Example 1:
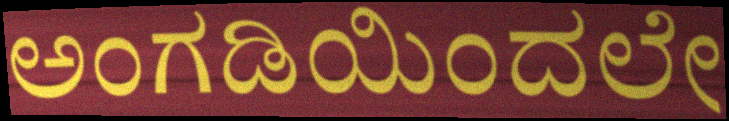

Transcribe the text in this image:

ಅಂಗಡಿಯಿಂದಲೇ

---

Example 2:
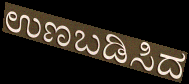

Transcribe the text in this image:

ಉಣಬಡಿಸಿದ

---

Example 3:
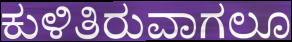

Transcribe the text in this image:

ಕುಳಿತಿರುವಾಗಲೂ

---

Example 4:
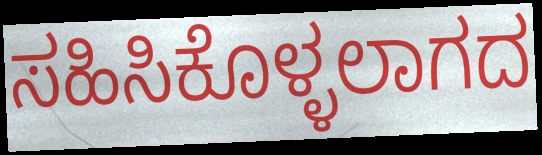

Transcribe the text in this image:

ಸಹಿಸಿಕೊಳ್ಳಲಾಗದ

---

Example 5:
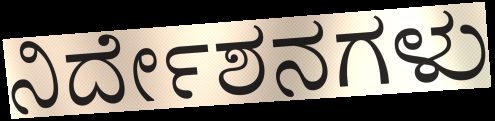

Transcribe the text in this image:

ನಿರ್ದೇಶನಗಳು